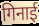
गिनाई